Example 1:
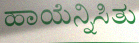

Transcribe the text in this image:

ಹಾಯೆನ್ನಿಸಿತು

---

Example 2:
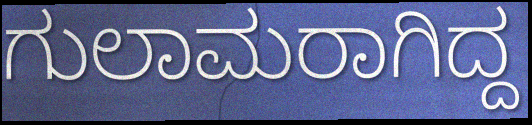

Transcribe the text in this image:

ಗುಲಾಮರಾಗಿದ್ದ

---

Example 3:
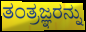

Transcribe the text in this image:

ತಂತ್ರಜ್ಞರನ್ನು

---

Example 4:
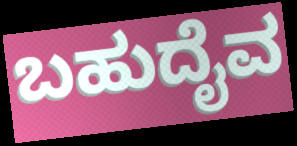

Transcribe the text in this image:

ಬಹುದೈವ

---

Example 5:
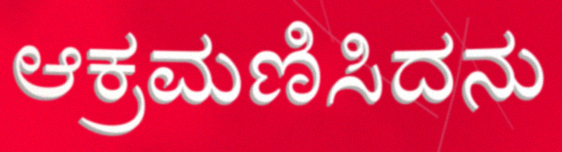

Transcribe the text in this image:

ಆಕ್ರಮಣಿಸಿದನು